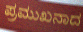
ಪ್ರಮುಖನಾದ